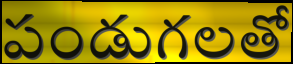
పండుగలతో